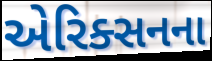
એરિક્સનના